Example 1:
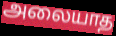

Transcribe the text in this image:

அலையாத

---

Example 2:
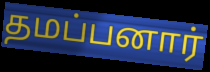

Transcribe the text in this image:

தமப்பனார்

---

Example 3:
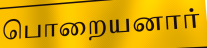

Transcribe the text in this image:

பொறையனார்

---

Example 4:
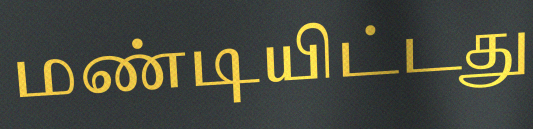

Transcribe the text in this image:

மண்டியிட்டது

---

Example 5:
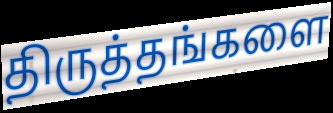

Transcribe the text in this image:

திருத்தங்களை